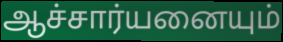
ஆச்சார்யனையும்